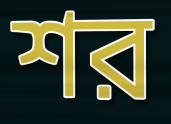
শর